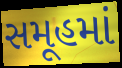
સમૂહમાં